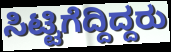
ಸಿಟ್ಟಿಗೆದ್ದಿದ್ದರು